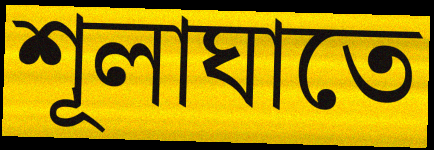
শূলাঘাতে